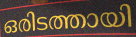
ഒരിടത്തായി